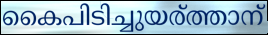
കൈപിടിച്ചുയര്ത്താന്